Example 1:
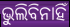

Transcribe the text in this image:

ଭୁଲିବିନାହିଁ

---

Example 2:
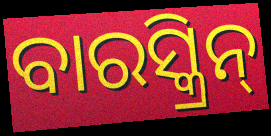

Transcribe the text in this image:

ବାରସ୍କ୍ରିନ୍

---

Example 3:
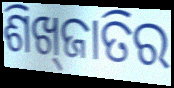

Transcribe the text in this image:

ଶିଖ୍‌ଜାତିର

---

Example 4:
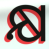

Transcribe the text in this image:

କ୍ଷ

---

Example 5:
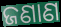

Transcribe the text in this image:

ଜଣାଣ